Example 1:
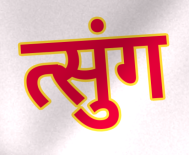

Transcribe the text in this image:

त्सुंग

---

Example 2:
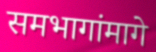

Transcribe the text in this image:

समभागांमागे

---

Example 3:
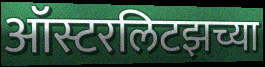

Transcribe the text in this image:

ऑस्टरलिटझच्या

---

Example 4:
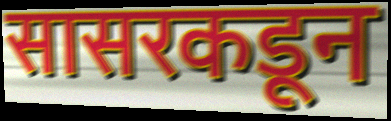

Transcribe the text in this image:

सासरकडून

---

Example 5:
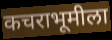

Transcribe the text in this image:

कचराभूमीला